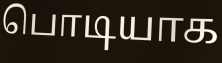
பொடியாக